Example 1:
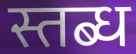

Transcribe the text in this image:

स्तब्ध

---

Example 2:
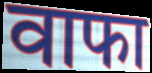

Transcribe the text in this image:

वाफा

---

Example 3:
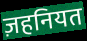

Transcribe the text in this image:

ज़हनियत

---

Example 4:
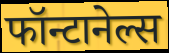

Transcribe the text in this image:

फॉन्टानेल्स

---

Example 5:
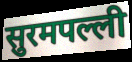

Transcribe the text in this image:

सुरमपल्ली